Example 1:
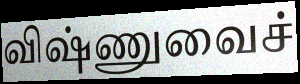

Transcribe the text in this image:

விஷ்ணுவைச்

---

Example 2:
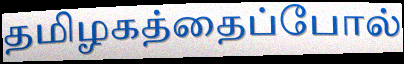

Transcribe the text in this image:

தமிழகத்தைப்போல்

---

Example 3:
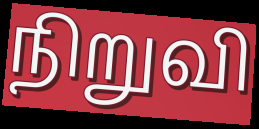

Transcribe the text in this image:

நிறுவி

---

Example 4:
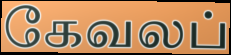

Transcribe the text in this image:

கேவலப்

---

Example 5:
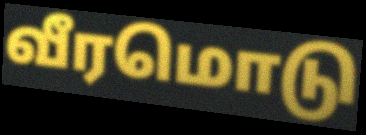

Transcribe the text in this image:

வீரமொடு